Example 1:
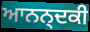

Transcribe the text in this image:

ਆਨਨ੍ਦਕੀ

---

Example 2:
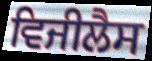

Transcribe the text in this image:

ਵਿਜੀਲੈਸ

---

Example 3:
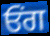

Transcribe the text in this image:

ਓਂਗ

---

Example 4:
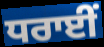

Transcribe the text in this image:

ਧਰਾਈਂ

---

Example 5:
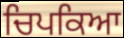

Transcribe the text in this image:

ਚਿਪਕਿਆ